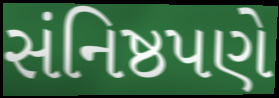
સંનિષ્ઠપણે